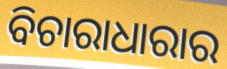
ବିଚାରାଧାରାର